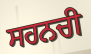
ਸਹਨਚੀ